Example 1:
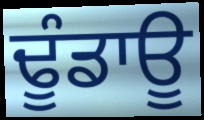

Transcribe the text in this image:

ਢੂੰਡਾਊ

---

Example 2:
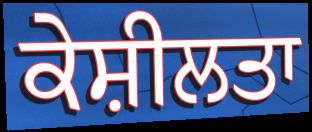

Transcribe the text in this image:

ਕੇਸ਼ੀਲਤਾ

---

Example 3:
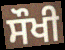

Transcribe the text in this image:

ਸੌਖੀ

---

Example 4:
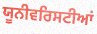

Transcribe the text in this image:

ਯੂਨੀਵਰਿਸਟੀਆਂ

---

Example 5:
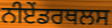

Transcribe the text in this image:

ਨੀਏਂਡਰਥਲਸ